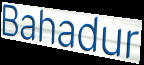
Bahadur